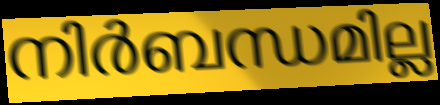
നിർബന്ധമില്ല